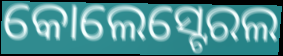
କୋଲେସ୍ଟେରଲ